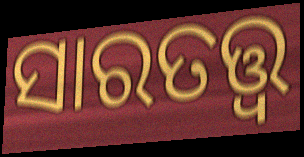
ସାରତତ୍ତ୍ୱ